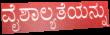
ವೈಶಾಲ್ಯತೆಯನ್ನು